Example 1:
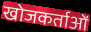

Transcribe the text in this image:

खोजकर्ताओं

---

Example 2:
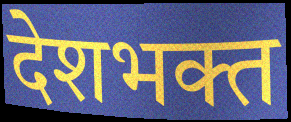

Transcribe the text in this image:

देशभक्त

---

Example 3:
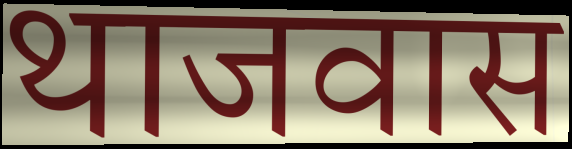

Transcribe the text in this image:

थाजवास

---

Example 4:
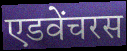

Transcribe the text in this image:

एडवेंचरस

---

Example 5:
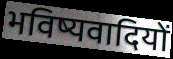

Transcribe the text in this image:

भविष्यवादियों